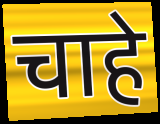
चाहे